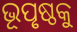
ଭୂପୃଷ୍ଠକୁ